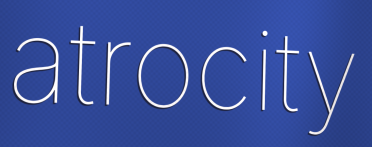
atrocity